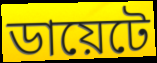
ডায়েটে